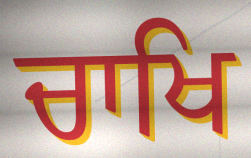
ਚਾਖਿ